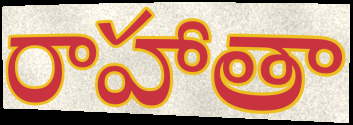
రాహాతా